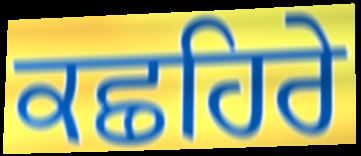
ਕਛਹਿਰੇ